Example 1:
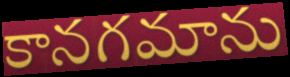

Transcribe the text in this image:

కానగమాను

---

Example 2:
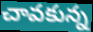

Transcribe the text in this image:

చావకున్న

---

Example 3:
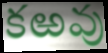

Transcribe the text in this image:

కఱవు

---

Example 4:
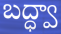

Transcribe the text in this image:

బద్ధ్వా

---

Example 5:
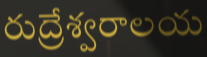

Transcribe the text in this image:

రుద్రేశ్వరాలయ